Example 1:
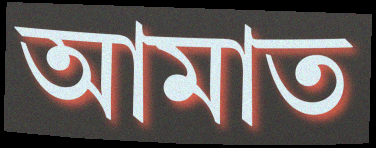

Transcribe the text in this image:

আমাত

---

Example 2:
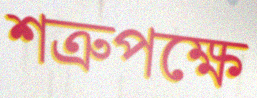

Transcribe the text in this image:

শত্রুপক্ষে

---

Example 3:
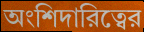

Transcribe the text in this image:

অংশিদারিত্বের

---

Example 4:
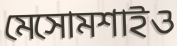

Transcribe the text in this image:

মেসোমশাইও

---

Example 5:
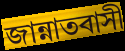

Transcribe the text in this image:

জান্নাতবাসী